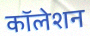
कॉलेशन